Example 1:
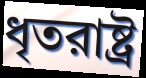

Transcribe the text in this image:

ধৃতরাষ্ট্র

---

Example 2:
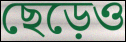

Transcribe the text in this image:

ছেড়েও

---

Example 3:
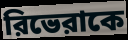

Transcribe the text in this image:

রিভেরাকে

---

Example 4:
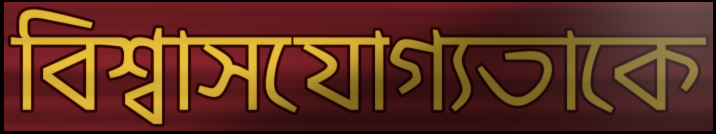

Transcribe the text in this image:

বিশ্বাসযোগ্যতাকে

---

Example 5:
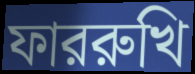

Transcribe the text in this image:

ফাররুখি